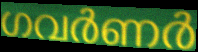
ഗവർണർ